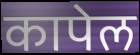
कापेल